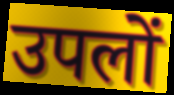
उपलों